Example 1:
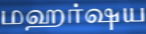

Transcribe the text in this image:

மஹர்ஷய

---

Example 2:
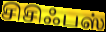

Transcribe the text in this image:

சிசிஃபஸ்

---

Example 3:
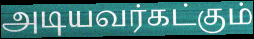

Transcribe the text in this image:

அடியவர்கட்கும்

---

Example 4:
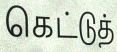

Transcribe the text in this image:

கெட்டுத்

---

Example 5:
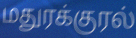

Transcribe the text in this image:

மதுரக்குரல்